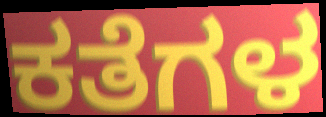
ಕತೆಗಳ